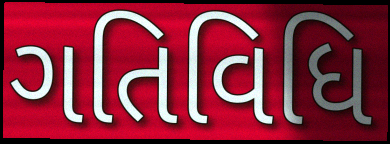
ગતિવિધિ